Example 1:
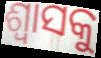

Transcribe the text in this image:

ଶ୍ଵାସକୁ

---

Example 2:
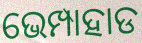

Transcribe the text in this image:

ଭେମ୍ପାହାଡ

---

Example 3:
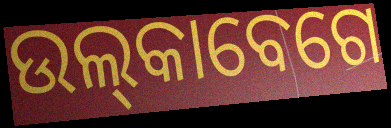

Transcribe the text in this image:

ଉଲ୍‌କାବେଗେ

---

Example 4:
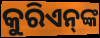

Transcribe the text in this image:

କୁରିଏନ୍‌ଙ୍କ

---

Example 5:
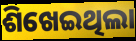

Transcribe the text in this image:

ଶିଖେଇଥିଲା